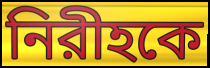
নিরীহকে